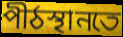
পীঠস্থানতে